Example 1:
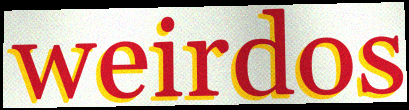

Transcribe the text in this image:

weirdos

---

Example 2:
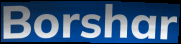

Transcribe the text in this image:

Borshar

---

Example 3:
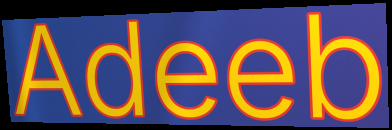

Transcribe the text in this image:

Adeeb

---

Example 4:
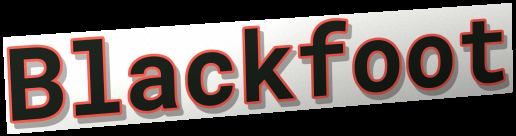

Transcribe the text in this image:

Blackfoot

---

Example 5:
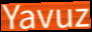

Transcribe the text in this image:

Yavuz